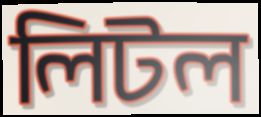
লিটল